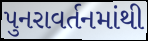
પુનરાવર્તનમાંથી